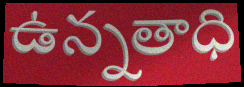
ఉన్నతాధి